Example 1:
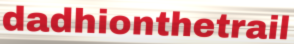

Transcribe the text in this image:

dadhionthetrail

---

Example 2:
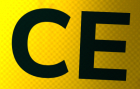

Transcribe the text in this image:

CE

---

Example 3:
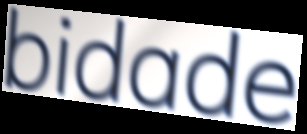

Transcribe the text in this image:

bidade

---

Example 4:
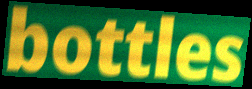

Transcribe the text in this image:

bottles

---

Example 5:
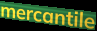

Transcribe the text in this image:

mercantile